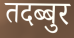
तदब्बुर